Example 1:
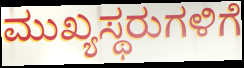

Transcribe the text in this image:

ಮುಖ್ಯಸ್ಥರುಗಳಿಗೆ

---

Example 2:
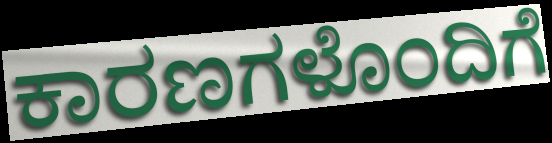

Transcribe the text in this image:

ಕಾರಣಗಳೊಂದಿಗೆ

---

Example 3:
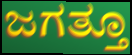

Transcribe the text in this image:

ಜಗತ್ತೂ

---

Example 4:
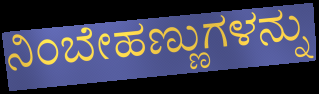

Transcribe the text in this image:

ನಿಂಬೇಹಣ್ಣುಗಳನ್ನು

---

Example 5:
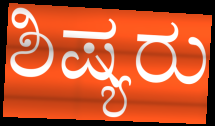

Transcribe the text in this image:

ಶಿಷ್ಯರು